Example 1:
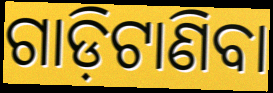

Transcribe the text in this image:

ଗାଡ଼ିଟାଣିବା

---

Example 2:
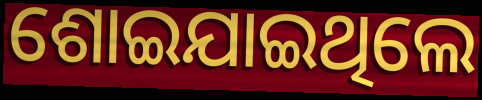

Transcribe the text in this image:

ଶୋଇଯାଇଥିଲେ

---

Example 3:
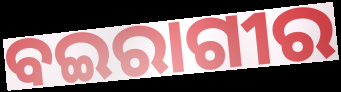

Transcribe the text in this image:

ବଇରାଗୀର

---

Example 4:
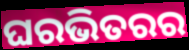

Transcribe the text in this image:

ଘରଭିତରର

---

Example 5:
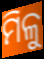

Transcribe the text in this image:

ମିଳୁ